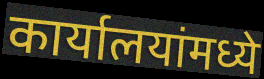
कार्यालयांमध्ये